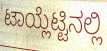
ಟಾಯ್ಲೆಟ್ಟಿನಲ್ಲಿ